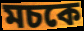
মচকে